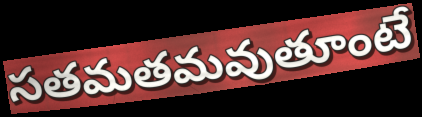
సతమతమవుతూంటే